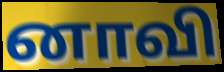
னாவி